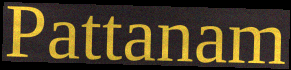
Pattanam